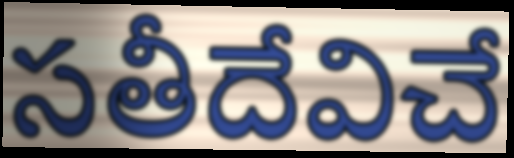
సతీదేవిచే